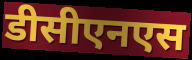
डीसीएनएस